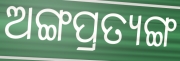
ଅଙ୍ଗପ୍ରତ୍ୟଙ୍ଗ